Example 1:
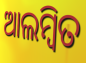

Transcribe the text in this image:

ଆଲମ୍ୱିତ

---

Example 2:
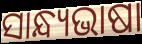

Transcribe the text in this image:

ସାନ୍ଧ୍ୟଭାଷା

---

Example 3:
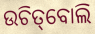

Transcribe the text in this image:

ଉଚିତ୍‌ବୋଲି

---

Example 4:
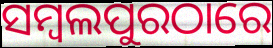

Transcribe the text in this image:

ସମ୍ବଲପୁରଠାରେ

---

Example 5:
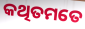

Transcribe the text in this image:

କଥିତମତେ